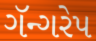
ગૅન્ગરેપ